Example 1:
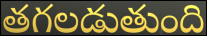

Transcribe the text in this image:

తగలడుతుంది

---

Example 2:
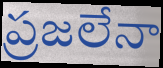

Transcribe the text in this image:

ప్రజలేనా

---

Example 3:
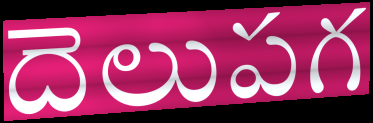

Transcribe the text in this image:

దెలుపగ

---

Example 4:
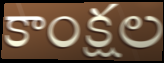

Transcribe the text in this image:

కాంక్షల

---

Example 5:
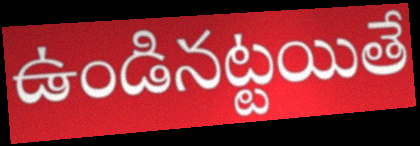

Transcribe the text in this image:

ఉండినట్టయితే